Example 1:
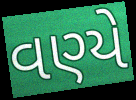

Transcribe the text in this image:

વણ્યે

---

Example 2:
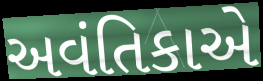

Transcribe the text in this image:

અવંતિકાએ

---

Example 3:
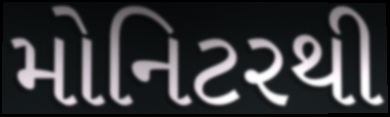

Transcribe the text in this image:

મોનિટરથી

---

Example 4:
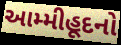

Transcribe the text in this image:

આમ્મીહૂદનો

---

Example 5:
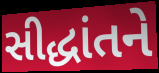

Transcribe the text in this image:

સીદ્ધાંતને